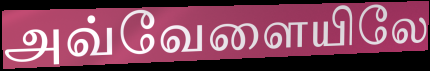
அவ்வேளையிலே